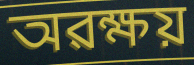
অৱক্ষয়